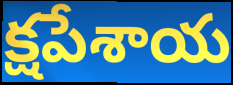
క్షపేశాయ